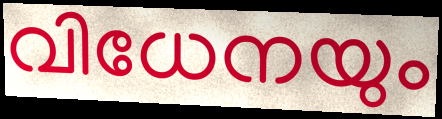
വിധേനയും